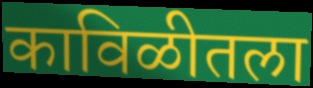
काविळीतला